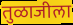
तुळाजीला